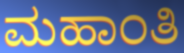
ಮಹಾಂತಿ